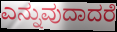
ಎನ್ನುವುದಾದರೆ